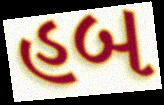
હબ